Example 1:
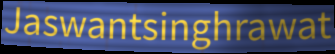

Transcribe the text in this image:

Jaswantsinghrawat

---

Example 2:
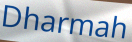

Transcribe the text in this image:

Dharmah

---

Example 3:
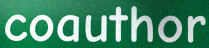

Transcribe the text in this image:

coauthor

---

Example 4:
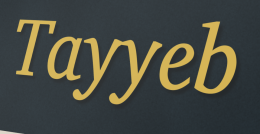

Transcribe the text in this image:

Tayyeb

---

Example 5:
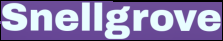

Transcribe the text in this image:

Snellgrove